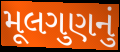
મૂલગુણનું